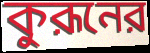
কুরূনের